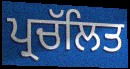
ਪ੍ਰਚੱਲਿਤ